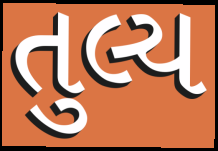
તુલ્ય